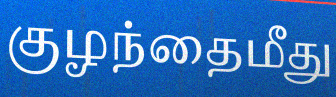
குழந்தைமீது